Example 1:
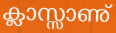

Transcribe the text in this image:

ക്ലാസ്സാണു്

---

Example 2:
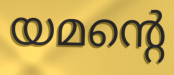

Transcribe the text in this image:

യമന്റെ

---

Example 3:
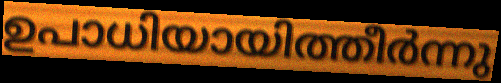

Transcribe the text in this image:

ഉപാധിയായിത്തീർന്നു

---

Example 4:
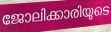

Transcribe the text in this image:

ജോലിക്കാരിയുടെ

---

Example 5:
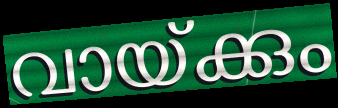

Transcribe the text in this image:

വായ്‌ക്കും